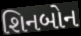
શિનબોન